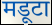
मडूटा